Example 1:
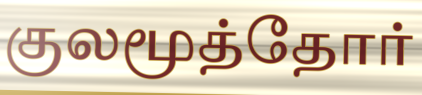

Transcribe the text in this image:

குலமூத்தோர்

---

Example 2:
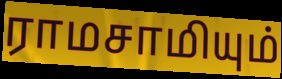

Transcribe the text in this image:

ராமசாமியும்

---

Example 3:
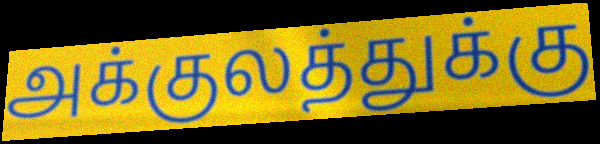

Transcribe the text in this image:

அக்குலத்துக்கு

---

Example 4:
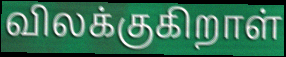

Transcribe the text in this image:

விலக்குகிறாள்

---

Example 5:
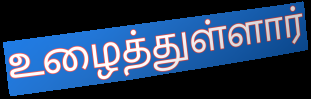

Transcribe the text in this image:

உழைத்துள்ளார்